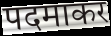
पदमाकर